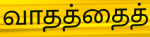
வாதத்தைத்